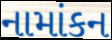
નામાંકન